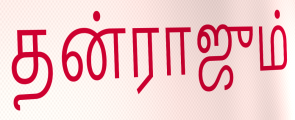
தன்ராஜும்